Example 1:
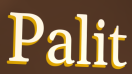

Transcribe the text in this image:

Palit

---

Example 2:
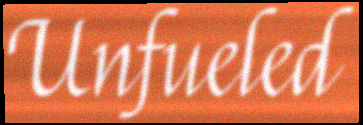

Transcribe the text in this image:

Unfueled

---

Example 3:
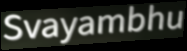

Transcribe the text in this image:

Svayambhu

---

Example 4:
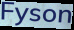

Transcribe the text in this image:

Fyson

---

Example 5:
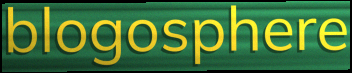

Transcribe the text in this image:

blogosphere